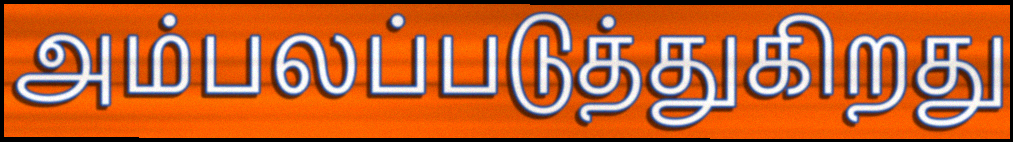
அம்பலப்படுத்துகிறது